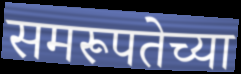
समरूपतेच्या